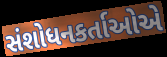
સંશોધનકર્તાઓએ